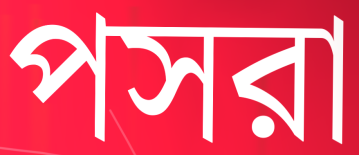
পসরা